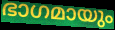
ഭാഗമായും